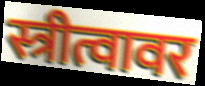
स्त्रीत्वावर